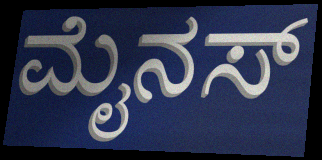
ಮೈನಸ್